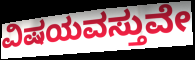
ವಿಷಯವಸ್ತುವೇ